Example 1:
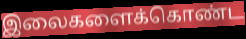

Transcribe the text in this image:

இலைகளைக்கொண்ட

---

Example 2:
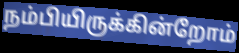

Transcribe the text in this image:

நம்பியிருக்கின்றோம்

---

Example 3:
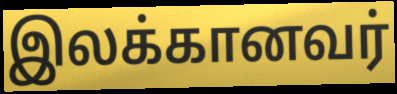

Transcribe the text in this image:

இலக்கானவர்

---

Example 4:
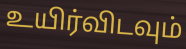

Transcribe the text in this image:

உயிர்விடவும்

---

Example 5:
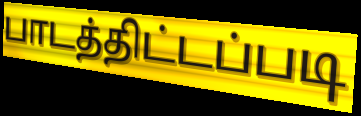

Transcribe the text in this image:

பாடத்திட்டப்படி